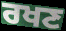
ਰਖਣ